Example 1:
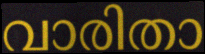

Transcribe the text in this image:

വാരിതാ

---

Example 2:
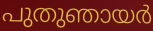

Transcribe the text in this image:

പുതുഞായർ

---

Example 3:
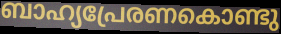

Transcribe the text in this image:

ബാഹ്യപ്രേരണകൊണ്ടു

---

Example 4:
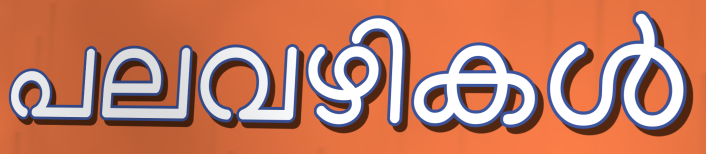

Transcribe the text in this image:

പലവഴികൾ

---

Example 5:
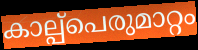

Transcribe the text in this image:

കാല്പ്പെരുമാറ്റം